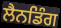
ਲੈਨਡਿੰਗ